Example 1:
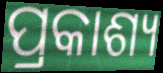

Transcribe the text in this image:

ପ୍ରକାଶ୍ୟ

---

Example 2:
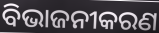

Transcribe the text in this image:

ବିଭାଜନୀକରଣ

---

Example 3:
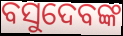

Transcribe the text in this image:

ବସୁଦେବଙ୍କ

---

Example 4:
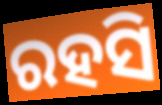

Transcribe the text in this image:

ରହସି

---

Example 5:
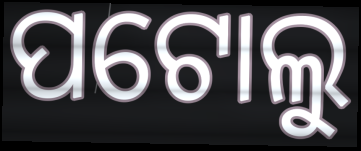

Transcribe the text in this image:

ପଟୋଲୁ